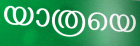
യാത്രയെ